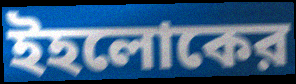
ইহলোকের